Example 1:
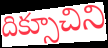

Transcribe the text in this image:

దిక్సూచిని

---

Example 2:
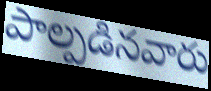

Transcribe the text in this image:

పాల్పడినవారు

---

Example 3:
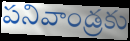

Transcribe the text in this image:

పనివాండ్రకు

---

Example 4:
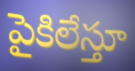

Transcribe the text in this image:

పైకిలేస్తూ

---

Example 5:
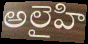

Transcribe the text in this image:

అలైహి